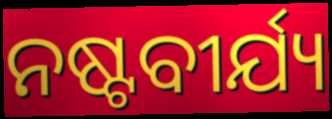
ନଷ୍ଟବୀର୍ଯ୍ୟ